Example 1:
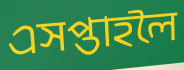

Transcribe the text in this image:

এসপ্তাহলৈ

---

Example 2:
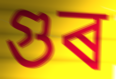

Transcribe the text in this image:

গুৰ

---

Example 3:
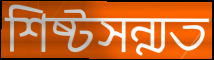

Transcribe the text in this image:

শিষ্টসন্মত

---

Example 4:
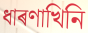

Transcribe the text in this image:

ধাৰণাখিনি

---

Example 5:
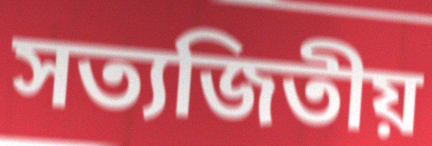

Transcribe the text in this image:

সত্যজিতীয়